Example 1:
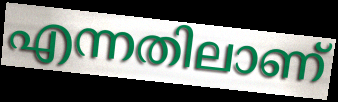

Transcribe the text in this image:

എന്നതിലാണ്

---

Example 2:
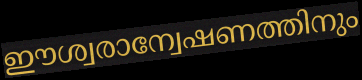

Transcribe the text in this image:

ഈശ്വരാന്വേഷണത്തിനും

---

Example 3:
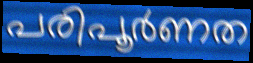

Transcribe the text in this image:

പരിപൂർണത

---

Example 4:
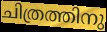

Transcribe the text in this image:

ചിത്രത്തിനു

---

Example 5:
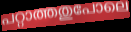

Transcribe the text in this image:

പറ്റാത്തതുപോലെ